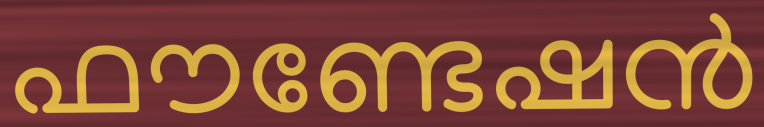
ഫൗണ്ടേഷൻ